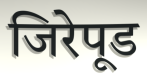
जिरेपूड